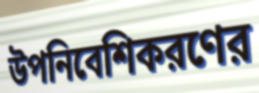
উপনিবেশিকরণের